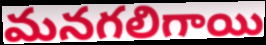
మనగలిగాయి